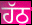
ਹੱਠ